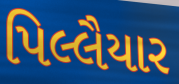
પિલ્લૈયાર